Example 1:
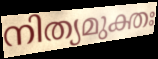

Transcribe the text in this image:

നിത്യമുക്തഃ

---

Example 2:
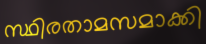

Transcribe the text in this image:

സ്ഥിരതാമസമാക്കി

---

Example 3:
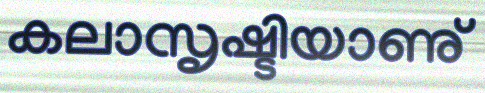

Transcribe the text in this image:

കലാസൃഷ്ടിയാണു്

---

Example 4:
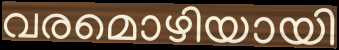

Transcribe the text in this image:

വരമൊഴിയായി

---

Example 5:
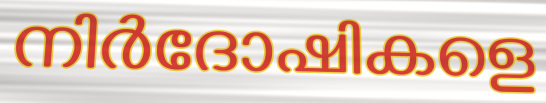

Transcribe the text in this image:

നിർദോഷികളെ